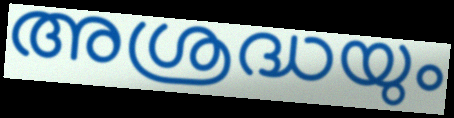
അശ്രദ്ധയും